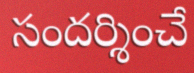
సందర్శించే